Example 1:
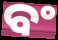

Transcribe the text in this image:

ବଂ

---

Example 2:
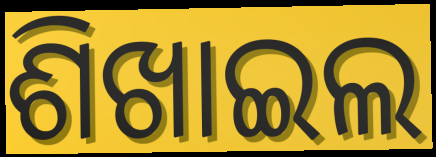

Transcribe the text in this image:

ଶିଖାଇଲ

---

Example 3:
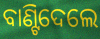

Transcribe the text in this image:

ବାଣ୍ଟିଦେଲେ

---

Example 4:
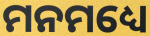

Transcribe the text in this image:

ମନମଧ୍ୟେ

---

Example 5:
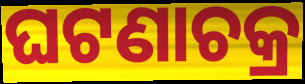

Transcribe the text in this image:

ଘଟଣାଚକ୍ର